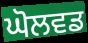
ਘੋਲਵਡ